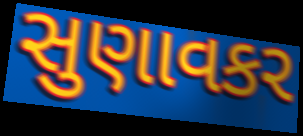
સુણાવકર